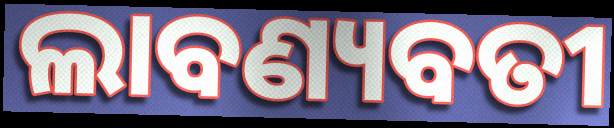
ଲାବଣ୍ୟବତୀ